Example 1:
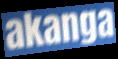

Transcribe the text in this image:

akanga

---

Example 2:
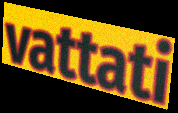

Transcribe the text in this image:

vattati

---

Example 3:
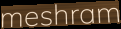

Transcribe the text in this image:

meshram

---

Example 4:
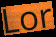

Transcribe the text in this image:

Lor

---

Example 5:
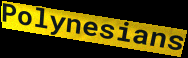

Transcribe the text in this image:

Polynesians